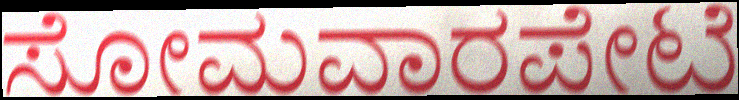
ಸೋಮವಾರಪೇಟೆ